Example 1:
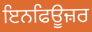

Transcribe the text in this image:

ਇਨਫਿਊਜ਼ਰ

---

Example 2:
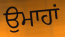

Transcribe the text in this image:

ਉਮਾਹਾਂ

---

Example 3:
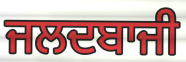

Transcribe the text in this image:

ਜਲਦਬਾਜੀ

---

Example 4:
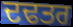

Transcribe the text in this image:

ਦਢਤਰ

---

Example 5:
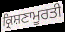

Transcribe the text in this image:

ਕ੍ਰਿਸ਼ਣਾਮੂਰਤੀ